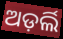
ଅଡ଼ର୍ଲି